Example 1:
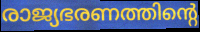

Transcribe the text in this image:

രാജ്യഭരണത്തിന്റെ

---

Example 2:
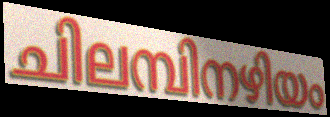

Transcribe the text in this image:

ചിലമ്പിനഴിയം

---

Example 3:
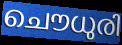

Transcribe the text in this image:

ചൌധുരി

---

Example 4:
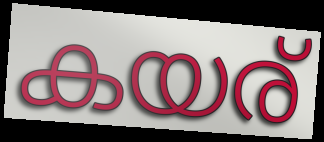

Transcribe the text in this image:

കയര്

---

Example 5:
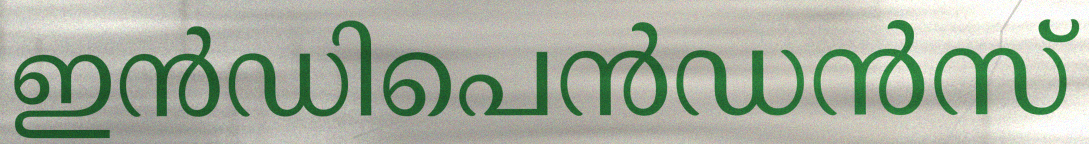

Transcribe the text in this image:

ഇൻഡിപെൻഡൻസ്